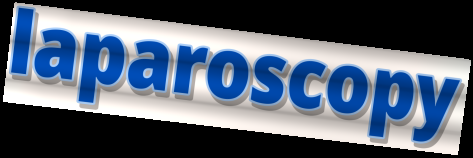
laparoscopy